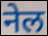
नेल